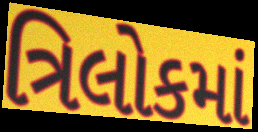
ત્રિલોકમાં